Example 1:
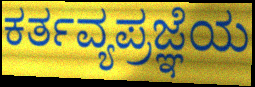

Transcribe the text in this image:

ಕರ್ತವ್ಯಪ್ರಜ್ಞೆಯ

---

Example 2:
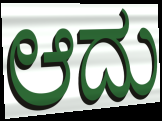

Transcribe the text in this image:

ಆದು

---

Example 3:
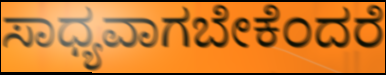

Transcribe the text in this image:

ಸಾಧ್ಯವಾಗಬೇಕೆಂದರೆ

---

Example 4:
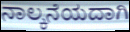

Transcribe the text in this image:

ನಾಲ್ಕನೆಯದಾಗಿ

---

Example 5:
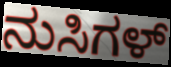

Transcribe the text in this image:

ನುಸಿಗಳ್